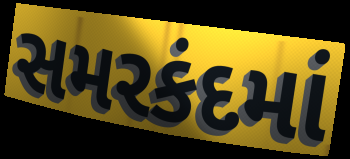
સમરકંદમાં